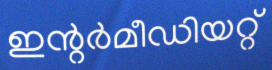
ഇന്റർമീഡിയറ്റ്